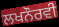
ਲਖਨੌਰਵੀ